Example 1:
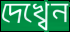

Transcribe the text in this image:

দেখ্বেন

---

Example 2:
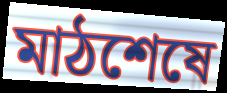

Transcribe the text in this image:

মাঠশেষে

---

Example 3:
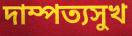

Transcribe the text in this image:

দাম্পত্যসুখ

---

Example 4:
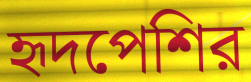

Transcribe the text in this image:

হৃদপেশির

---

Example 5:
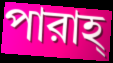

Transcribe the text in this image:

পারাহ্